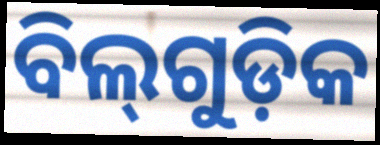
ବିଲ୍‌ଗୁଡ଼ିକ